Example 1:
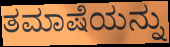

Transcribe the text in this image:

ತಮಾಷೆಯನ್ನು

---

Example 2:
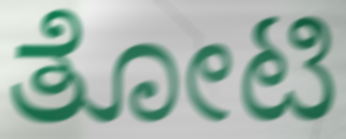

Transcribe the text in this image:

ತೋಟಿ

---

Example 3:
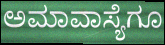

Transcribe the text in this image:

ಅಮಾವಾಸ್ಯೆಗೂ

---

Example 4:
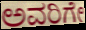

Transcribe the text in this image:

ಅವರಿಗೇ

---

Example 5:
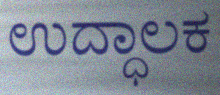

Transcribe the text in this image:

ಉದ್ಧಾಲಕ